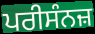
ਪਰੀਸੰਨਜ਼